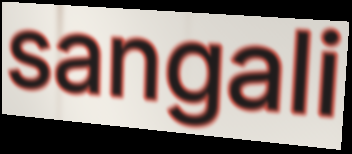
sangali